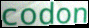
codon